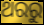
ଥରରୁ